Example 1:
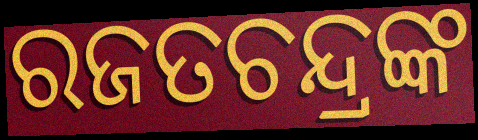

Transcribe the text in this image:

ରଜତଚନ୍ଦ୍ରଙ୍କ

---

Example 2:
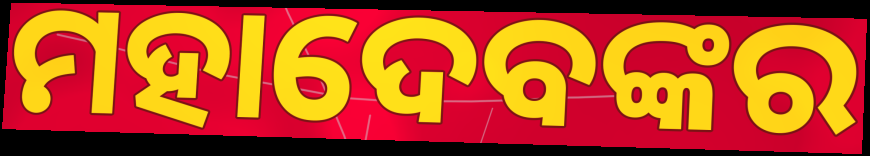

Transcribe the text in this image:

ମହାଦେବଙ୍କର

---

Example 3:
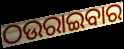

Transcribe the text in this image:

ଠଉରାଇବାର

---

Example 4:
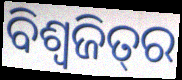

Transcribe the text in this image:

ବିଶ୍ୱଜିତ୍‌ର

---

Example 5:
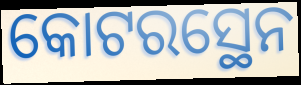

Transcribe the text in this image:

କୋଟରସ୍ଥେନ